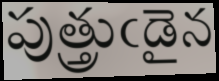
పుత్త్రుఁడైన